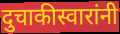
दुचाकीस्वारांनी